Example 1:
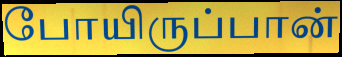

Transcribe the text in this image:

போயிருப்பான்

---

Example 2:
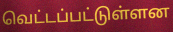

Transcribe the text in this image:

வெட்டப்பட்டுள்ளன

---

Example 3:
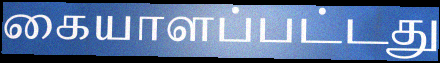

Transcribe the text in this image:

கையாளப்பட்டது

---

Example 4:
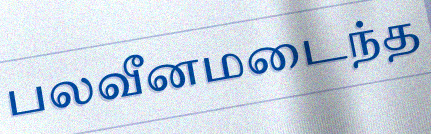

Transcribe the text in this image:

பலவீனமடைந்த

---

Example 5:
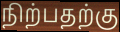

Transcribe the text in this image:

நிற்பதற்கு